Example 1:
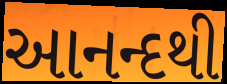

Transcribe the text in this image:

આનન્દથી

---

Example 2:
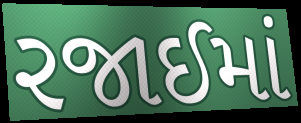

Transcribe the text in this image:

રજાઈમાં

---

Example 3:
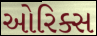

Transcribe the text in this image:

ઓરિક્સ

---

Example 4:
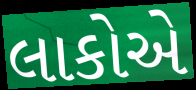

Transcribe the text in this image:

લાકોએ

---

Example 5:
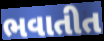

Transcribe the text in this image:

ભવાતીત